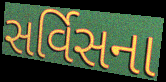
સર્વિસના